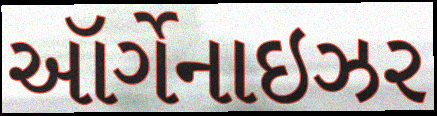
ઑર્ગેનાઇઝર